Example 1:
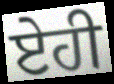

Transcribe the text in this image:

ਏਹੀ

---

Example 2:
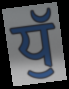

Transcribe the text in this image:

ਧੁੱ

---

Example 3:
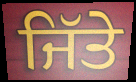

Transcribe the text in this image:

ਜਿੱਤੇ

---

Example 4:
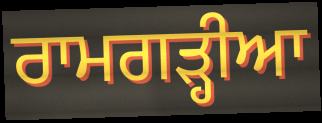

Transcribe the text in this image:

ਰਾਮਗੜ੍ਹੀਆ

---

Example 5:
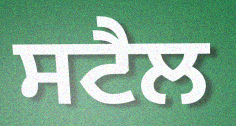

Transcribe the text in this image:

ਸਟੈਲ